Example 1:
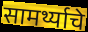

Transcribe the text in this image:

सामर्थ्याचे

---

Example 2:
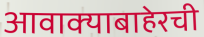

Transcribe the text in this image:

आवाक्याबाहेरची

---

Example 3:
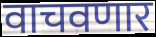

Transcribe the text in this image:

वाचवणार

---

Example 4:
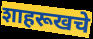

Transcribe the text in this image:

शाहरूखचे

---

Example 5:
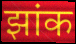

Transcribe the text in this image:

झांक